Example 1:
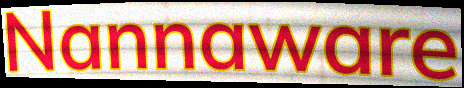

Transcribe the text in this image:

Nannaware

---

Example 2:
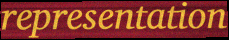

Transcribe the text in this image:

representation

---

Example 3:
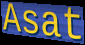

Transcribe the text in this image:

Asat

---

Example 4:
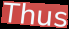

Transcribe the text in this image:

Thus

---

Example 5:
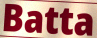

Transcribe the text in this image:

Batta